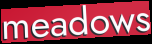
meadows